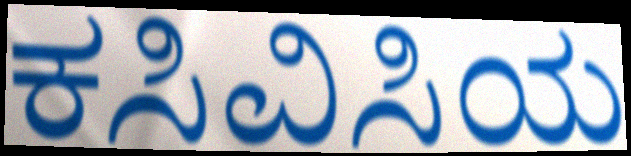
ಕಸಿವಿಸಿಯ